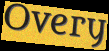
Overy